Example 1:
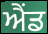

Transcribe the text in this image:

ਐੰਡ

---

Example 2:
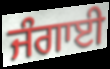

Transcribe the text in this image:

ਜੰਗਾਈ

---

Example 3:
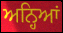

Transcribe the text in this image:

ਅਨ੍ਹਿਆਂ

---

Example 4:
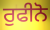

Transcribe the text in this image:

ਰੁਫੀਨੋ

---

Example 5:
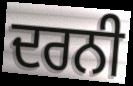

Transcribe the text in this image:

ਦਰਨੀ